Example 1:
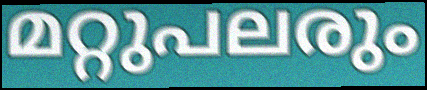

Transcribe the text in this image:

മറ്റുപലരും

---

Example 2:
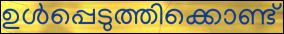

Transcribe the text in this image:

ഉൾപ്പെടുത്തിക്കൊണ്ട്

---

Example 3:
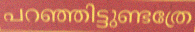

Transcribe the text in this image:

പറഞ്ഞിട്ടുണ്ടത്രേ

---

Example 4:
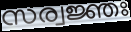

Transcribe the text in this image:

സര്വജ്ഞഃ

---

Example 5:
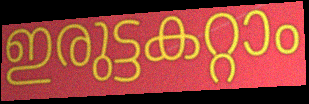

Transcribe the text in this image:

ഇരുട്ടകറ്റാം